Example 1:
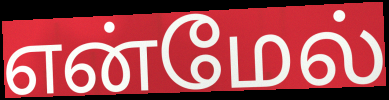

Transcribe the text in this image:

என்மேல்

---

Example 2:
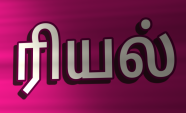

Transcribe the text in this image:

ரியல்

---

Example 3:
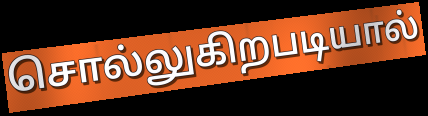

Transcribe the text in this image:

சொல்லுகிறபடியால்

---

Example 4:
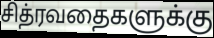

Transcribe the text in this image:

சித்ரவதைகளுக்கு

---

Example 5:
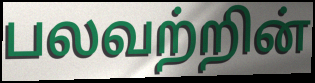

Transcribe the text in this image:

பலவற்றின்